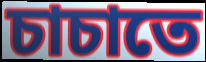
চাচাতে